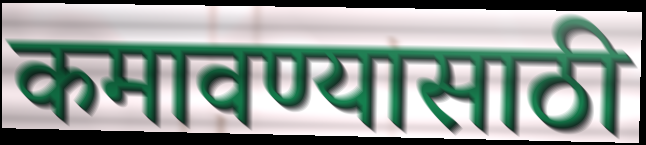
कमावण्यासाठी